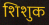
शिशुक